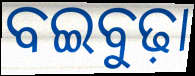
ବଇବୁଢ଼ା